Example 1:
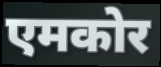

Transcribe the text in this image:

एमकोर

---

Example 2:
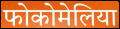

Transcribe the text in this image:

फोकोमेलिया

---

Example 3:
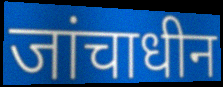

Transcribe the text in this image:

जांचाधीन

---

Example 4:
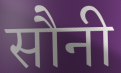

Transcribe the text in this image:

सौनी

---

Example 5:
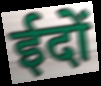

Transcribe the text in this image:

ईदों